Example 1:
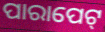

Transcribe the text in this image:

ପାରାପେଟ୍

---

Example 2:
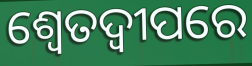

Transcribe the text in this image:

ଶ୍ୱେତଦ୍ୱୀପରେ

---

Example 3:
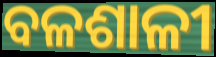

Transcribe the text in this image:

ବଳଶାଳୀ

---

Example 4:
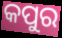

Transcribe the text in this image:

କପୁର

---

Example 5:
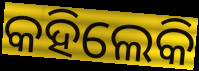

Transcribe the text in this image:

କହିଲେକି